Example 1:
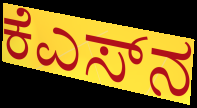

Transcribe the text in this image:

ಕೆಎಸ್‌ನ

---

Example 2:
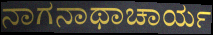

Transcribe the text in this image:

ನಾಗನಾಥಾಚಾರ್ಯ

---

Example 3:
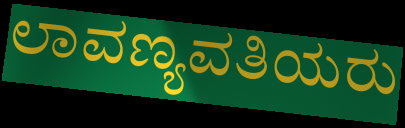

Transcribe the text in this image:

ಲಾವಣ್ಯವತಿಯರು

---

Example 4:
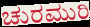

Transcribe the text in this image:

ಚುರಮುರಿ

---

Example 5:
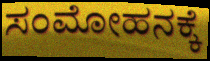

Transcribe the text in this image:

ಸಂಮೋಹನಕ್ಕೆ